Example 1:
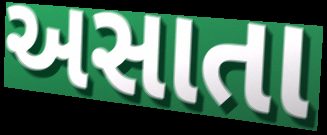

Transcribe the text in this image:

અસાતા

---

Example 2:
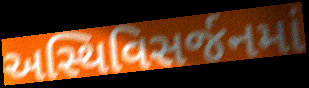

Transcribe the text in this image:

અસ્થિવિસર્જનમાં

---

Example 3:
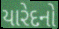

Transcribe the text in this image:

યારેદનો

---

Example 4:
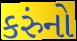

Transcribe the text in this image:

કરુંનો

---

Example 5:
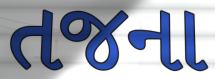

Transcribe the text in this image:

તજના